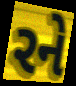
રને